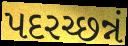
પદરચ્છન્નં